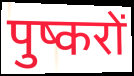
पुष्करों